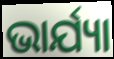
ଭାର୍ଯ୍ୟା